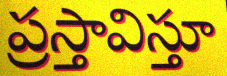
ప్రస్తావిస్తూ